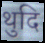
थुदि